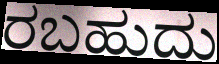
ರಬಹುದು